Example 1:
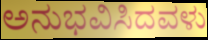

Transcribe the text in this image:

ಅನುಭವಿಸಿದವಳು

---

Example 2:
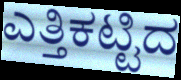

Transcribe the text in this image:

ಎತ್ತಿಕಟ್ಟಿದ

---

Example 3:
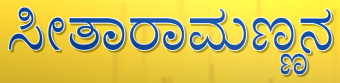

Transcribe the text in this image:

ಸೀತಾರಾಮಣ್ಣನ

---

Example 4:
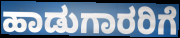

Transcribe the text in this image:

ಹಾಡುಗಾರರಿಗೆ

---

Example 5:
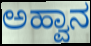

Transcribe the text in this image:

ಅಹ್ವಾನ